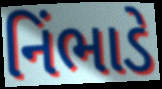
નિંભાડે